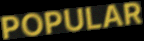
POPULAR